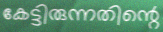
കേട്ടിരുന്നതിന്റെ